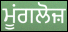
ਮੂਂਗਲੋਜ਼